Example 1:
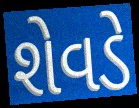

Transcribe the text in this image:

શેવડે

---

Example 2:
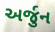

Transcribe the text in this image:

અર્જુન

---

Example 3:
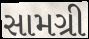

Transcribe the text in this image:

સામગ્રી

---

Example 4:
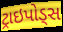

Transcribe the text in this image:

ટ્રાઇપોડ્સ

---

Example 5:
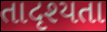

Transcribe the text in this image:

તાદૃશ્યતા